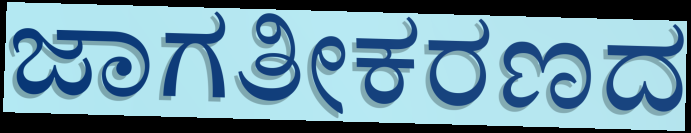
ಜಾಗತೀಕರಣದ